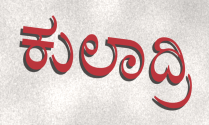
ಕುಲಾದ್ರಿ